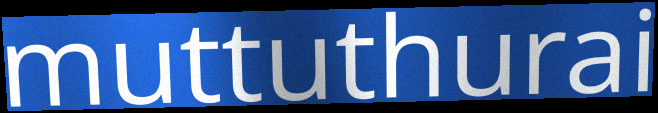
muttuthurai